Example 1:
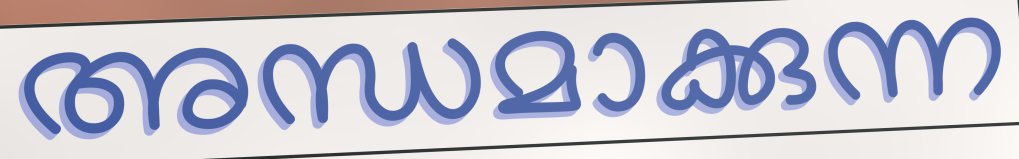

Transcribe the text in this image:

അന്ധമാക്കുന്ന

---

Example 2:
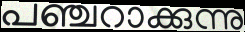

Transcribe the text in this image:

പഞ്ചറാക്കുന്നു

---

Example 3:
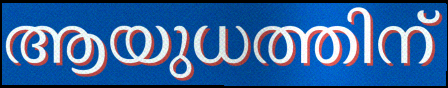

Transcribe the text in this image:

ആയുധത്തിന്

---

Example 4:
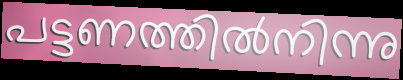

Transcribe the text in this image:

പട്ടണത്തിൽനിന്നു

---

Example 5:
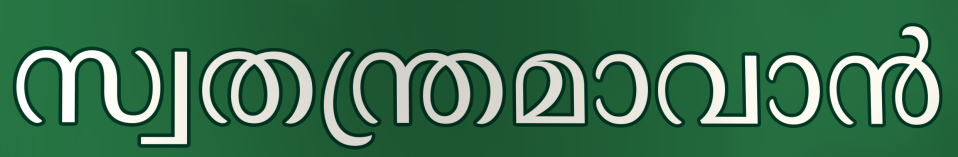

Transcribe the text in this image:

സ്വതന്ത്രമാവാൻ